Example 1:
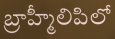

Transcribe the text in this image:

బ్రాహ్మీలిపిలో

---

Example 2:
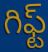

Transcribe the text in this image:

గిఫ్ట్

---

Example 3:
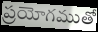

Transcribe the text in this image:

ప్రయోగముతో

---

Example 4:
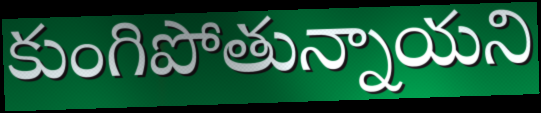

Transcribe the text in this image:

కుంగిపోతున్నాయని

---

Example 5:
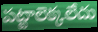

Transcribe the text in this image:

పట్టాలెక్కలేదు